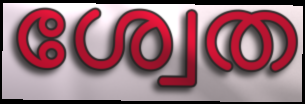
ശ്വേത